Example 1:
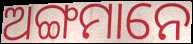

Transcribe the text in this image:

ଅଙ୍ଗମାନେ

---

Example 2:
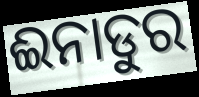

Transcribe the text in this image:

ଈନାଡୁର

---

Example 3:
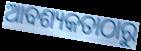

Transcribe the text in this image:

ଆବଶ୍ୟକତାଠାରୁ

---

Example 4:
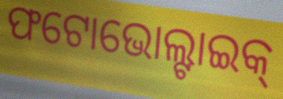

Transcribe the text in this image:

ଫଟୋଭୋଲ୍ଟାଇକ୍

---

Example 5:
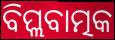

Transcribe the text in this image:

ବିପ୍ଲବାତ୍ମକ